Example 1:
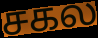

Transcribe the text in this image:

சகல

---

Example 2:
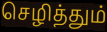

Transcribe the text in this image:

செழித்தும்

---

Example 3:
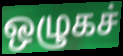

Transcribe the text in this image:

ஒழுகச்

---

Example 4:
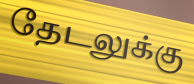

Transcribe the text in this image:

தேடலுக்கு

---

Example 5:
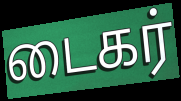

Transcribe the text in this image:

டைகர்